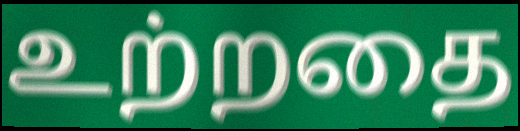
உற்றதை